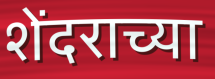
शेंदराच्या